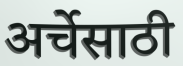
अर्चेसाठी